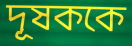
দূষককে